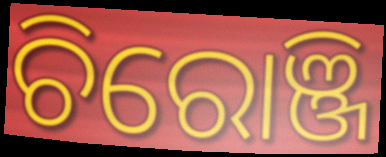
ଚିରୋଞ୍ଜି